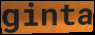
ginta